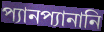
প্যানপ্যানানি